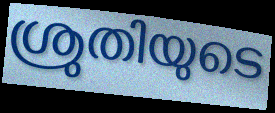
ശ്രുതിയുടെ